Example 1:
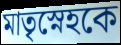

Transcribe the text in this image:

মাতৃস্নেহকে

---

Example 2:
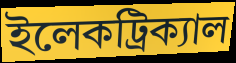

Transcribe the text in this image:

ইলেকট্রিক্যাল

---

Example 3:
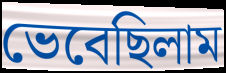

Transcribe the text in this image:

ভেবেছিলাম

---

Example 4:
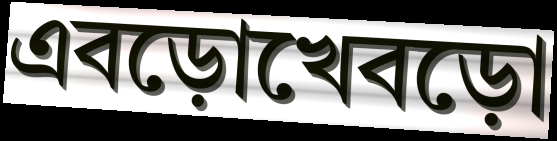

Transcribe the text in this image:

এবড়োখেবড়ো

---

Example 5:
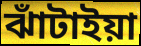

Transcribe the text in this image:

ঝাঁটাইয়া